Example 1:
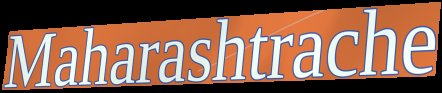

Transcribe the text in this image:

Maharashtrache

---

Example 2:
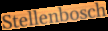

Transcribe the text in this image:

Stellenbosch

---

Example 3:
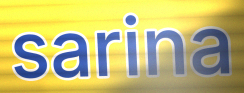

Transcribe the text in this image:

sarina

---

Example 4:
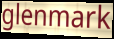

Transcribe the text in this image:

glenmark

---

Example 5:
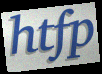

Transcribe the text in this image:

htfp